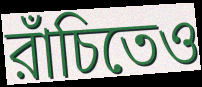
রাঁচিতেও